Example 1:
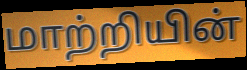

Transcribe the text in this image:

மாற்றியின்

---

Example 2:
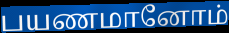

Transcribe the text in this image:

பயணமானோம்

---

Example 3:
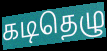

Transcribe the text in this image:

கடிதெழு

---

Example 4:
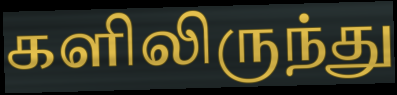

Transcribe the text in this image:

களிலிருந்து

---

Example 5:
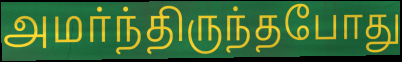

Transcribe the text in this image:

அமர்ந்திருந்தபோது